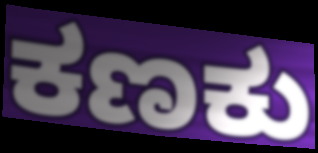
ಕಣಕು